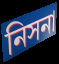
নিসনা